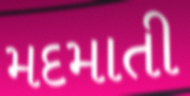
મદમાતી